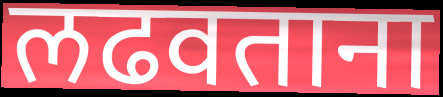
लढवताना